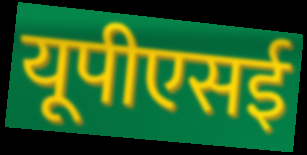
यूपीएसई